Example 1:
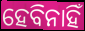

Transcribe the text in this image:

ହେବିନାହିଁ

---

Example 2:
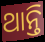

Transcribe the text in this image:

ଥାନ୍ତି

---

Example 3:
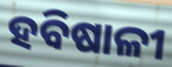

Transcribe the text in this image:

ହବିଷାଳୀ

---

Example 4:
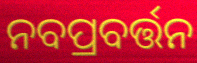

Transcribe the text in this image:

ନବପ୍ରବର୍ତ୍ତନ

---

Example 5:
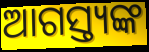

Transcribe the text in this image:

ଆଗସ୍ତ୍ୟଙ୍କ